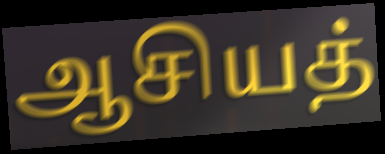
ஆசியத்